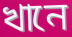
খানে